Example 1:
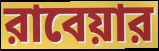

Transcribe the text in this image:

রাবেয়ার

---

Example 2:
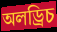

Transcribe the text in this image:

অলড্রিচ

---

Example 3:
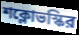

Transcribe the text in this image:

শক্লোভস্কির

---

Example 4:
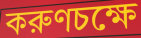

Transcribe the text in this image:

করুণচক্ষে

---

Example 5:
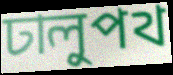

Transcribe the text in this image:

ঢালুপথ